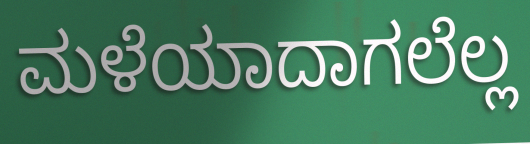
ಮಳೆಯಾದಾಗಲೆಲ್ಲ